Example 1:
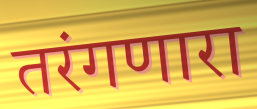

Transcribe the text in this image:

तरंगणारा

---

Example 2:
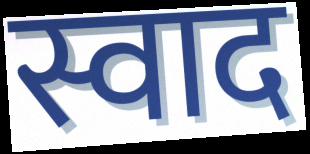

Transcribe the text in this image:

स्वाद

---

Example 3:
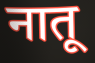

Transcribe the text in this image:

नातू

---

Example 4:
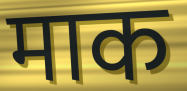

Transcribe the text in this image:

माक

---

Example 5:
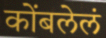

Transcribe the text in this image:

कोंबलेलं